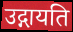
उद्गायति